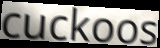
cuckoos